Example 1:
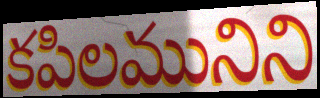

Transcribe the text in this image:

కపిలమునిని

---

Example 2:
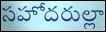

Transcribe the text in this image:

సహోదరుల్లా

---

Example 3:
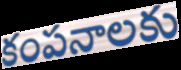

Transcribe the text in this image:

కంపనాలకు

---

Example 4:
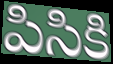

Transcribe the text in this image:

పిసికి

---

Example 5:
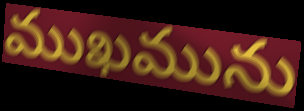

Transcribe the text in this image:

ముఖమును